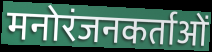
मनोरंजनकर्ताओं